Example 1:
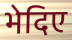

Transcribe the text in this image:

भेदिए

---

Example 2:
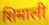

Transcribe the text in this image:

शिमाली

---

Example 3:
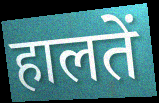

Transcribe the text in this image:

हालतें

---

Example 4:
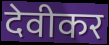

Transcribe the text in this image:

देवीकर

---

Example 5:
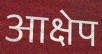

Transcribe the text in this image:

आक्षेप